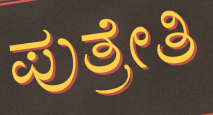
ಪುತ್ರೇತಿ